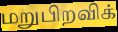
மறுபிறவிக்